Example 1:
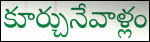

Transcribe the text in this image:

కూర్చునేవాళ్లం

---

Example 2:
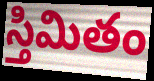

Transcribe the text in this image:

స్తిమితం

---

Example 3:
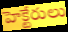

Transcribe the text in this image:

హెక్టేరులు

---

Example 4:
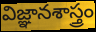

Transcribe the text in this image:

విజ్ఞానశాస్త్రం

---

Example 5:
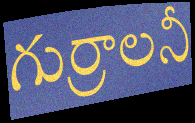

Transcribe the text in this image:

గుర్రాలనీ